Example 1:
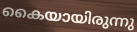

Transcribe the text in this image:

കൈയായിരുന്നു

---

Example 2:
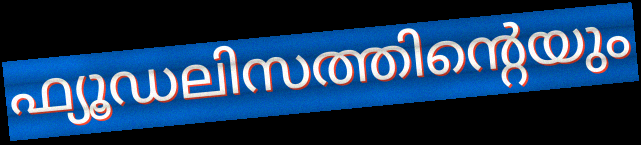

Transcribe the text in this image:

ഫ്യൂഡലിസത്തിന്റെയും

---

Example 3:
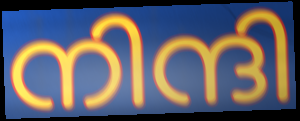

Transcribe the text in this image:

നിന്ദി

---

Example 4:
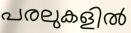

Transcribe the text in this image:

പരലുകളിൽ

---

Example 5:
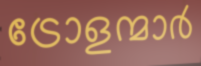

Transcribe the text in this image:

ട്രോളന്മാർ